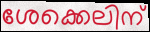
ശേക്കെലിന്